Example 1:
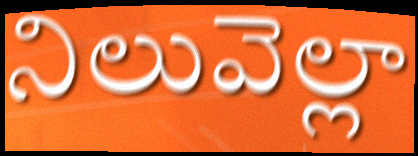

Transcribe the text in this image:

నిలువెల్లా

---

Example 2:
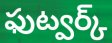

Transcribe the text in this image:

ఫుట్వర్క్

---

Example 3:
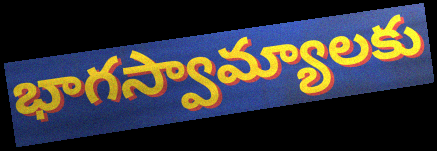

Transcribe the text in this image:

భాగస్వామ్యాలకు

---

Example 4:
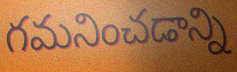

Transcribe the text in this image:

గమనించడాన్ని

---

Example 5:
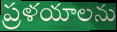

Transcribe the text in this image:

ప్రళయాలను